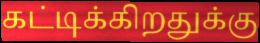
கட்டிக்கிறதுக்கு